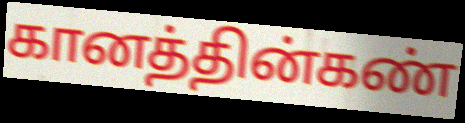
கானத்தின்கண்